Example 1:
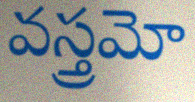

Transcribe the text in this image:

వస్త్రమో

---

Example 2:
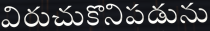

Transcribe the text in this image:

విరుచుకొనిపడును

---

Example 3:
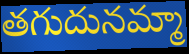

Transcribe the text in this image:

తగుదునమ్మా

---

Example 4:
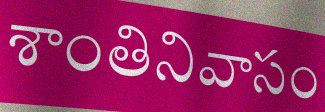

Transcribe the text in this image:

శాంతినివాసం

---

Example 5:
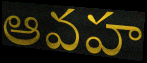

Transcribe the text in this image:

ఆవహ